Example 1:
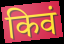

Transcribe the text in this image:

किवं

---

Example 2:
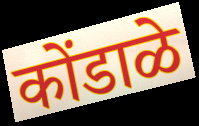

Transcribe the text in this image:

कोंडाळे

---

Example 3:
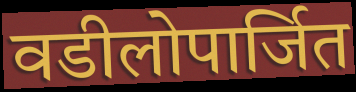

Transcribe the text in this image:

वडीलोपार्जित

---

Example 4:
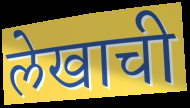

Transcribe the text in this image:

लेखाची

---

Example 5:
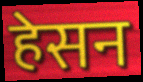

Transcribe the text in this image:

हेसन